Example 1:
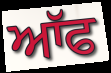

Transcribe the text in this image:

ਆੱਫ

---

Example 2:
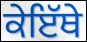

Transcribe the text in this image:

ਕੇਇੱਥੇ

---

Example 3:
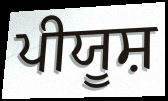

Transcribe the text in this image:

ਪੀਯੂਸ਼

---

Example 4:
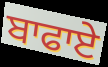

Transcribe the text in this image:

ਬਾਫਾਏ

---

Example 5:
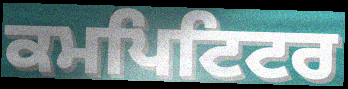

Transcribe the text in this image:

ਕਮਪਿਟਿਟਰ